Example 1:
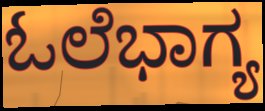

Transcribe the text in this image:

ಓಲೆಭಾಗ್ಯ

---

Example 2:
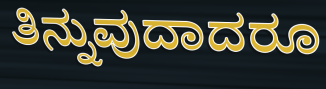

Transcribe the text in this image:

ತಿನ್ನುವುದಾದರೂ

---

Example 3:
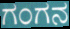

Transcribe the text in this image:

ಗಂಗನ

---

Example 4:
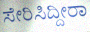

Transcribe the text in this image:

ಸೇರಿಸಿದ್ದೀರಾ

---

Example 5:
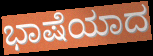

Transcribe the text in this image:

ಭಾಷೆಯಾದ